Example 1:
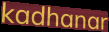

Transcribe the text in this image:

kadhanar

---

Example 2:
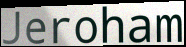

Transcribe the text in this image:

Jeroham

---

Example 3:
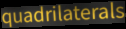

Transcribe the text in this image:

quadrilaterals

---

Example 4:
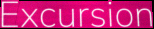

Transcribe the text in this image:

Excursion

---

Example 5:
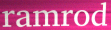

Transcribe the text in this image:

ramrod